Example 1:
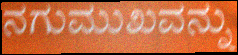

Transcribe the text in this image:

ನಗುಮುಖವನ್ನು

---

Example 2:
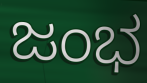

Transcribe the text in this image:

ಜಂಭ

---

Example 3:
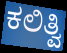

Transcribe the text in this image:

ಕಲಿತ್ವಿ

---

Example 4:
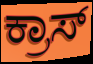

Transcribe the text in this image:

ಕ್ರಾಸ್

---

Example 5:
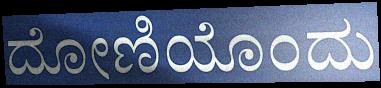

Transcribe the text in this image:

ದೋಣಿಯೊಂದು